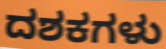
ದಶಕಗಳು